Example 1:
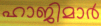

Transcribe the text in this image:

ഹാജിമാർ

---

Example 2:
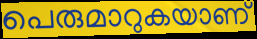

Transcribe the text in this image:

പെരുമാറുകയാണ്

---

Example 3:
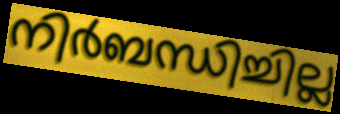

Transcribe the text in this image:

നിർബന്ധിച്ചില്ല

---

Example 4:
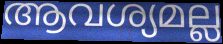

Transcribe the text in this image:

ആവശ്യമല്ല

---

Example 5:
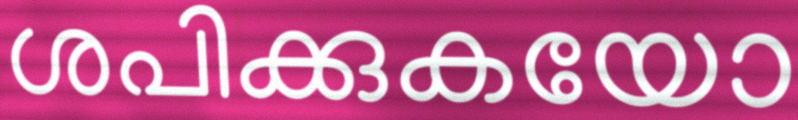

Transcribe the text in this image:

ശപിക്കുകയോ